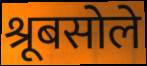
श्रूबसोले